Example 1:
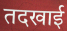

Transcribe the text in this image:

तदखाई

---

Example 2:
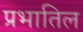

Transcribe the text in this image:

प्रभातिल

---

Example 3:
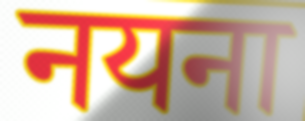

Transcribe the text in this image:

नयना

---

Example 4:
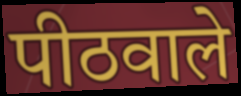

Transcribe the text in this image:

पीठवाले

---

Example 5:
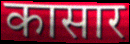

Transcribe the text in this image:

कासार